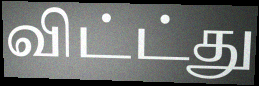
விட்ட்து